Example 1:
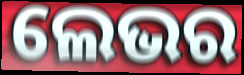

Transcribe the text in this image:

ଲେଭର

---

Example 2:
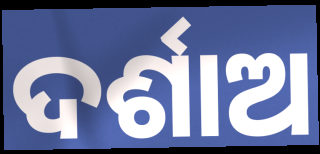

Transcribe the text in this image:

ଦର୍ଶାଅ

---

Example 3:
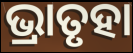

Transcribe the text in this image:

ଭ୍ରାତୃହା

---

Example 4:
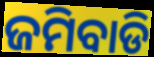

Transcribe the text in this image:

ଜମିବାଡି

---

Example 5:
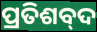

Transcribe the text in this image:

ପ୍ରତିଶବ୍‌ଦ